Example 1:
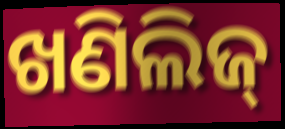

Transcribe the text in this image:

ଖଣିଲିଜ୍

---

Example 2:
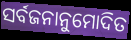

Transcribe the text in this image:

ସର୍ବଜନାନୁମୋଦିତ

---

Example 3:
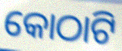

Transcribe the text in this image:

କୋଠାଟି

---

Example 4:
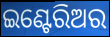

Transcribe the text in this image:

ଇଣ୍ଟେରିଅର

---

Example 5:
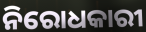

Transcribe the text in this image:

ନିରୋଧକାରୀ